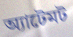
অ্যাটেমট